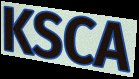
KSCA